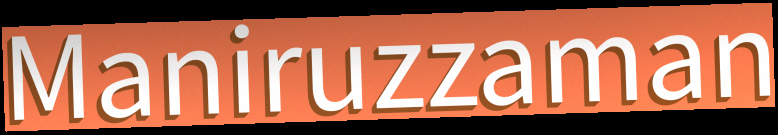
Maniruzzaman